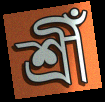
শ্ৰীঁ